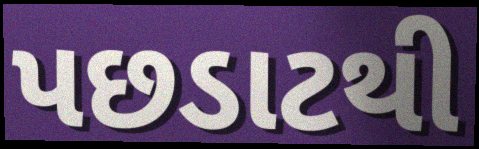
પછડાટથી